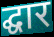
द्घार